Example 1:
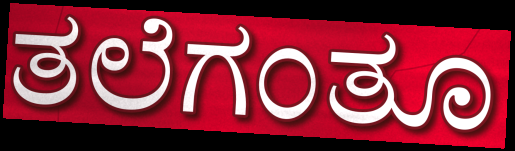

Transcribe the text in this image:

ತಲೆಗಂತೂ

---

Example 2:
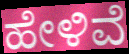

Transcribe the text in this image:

ಹೇಳಿವೆ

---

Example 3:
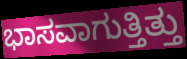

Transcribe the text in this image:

ಭಾಸವಾಗುತ್ತಿತ್ತು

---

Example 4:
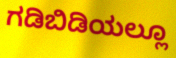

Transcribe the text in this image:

ಗಡಿಬಿಡಿಯಲ್ಲೂ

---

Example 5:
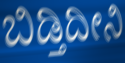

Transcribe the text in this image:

ಬಿಡ್ತಿದೀನಿ